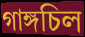
গাঙ্গচিল